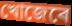
খোজেৰে